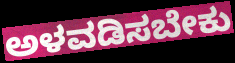
ಅಳವಡಿಸಬೇಕು